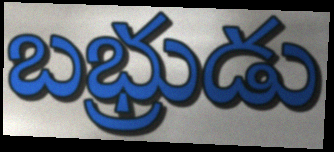
బభ్రుడు